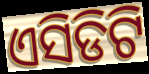
ଏସିଡିଟି